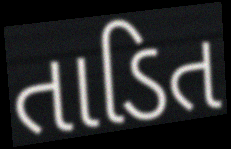
તાડિત